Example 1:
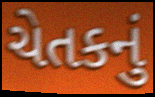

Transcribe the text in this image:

ચેતકનું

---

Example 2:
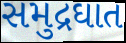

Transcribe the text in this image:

સમુદ્રઘાત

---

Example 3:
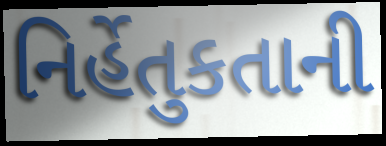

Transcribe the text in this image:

નિર્હેતુકતાની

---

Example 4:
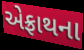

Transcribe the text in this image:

એફ્રાથના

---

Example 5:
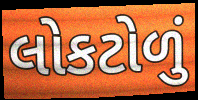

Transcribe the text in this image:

લોકટોળું